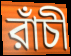
রাঁচী